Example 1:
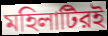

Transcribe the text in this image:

মহিলাটিরই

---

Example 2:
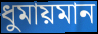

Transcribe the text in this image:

ধুমায়মান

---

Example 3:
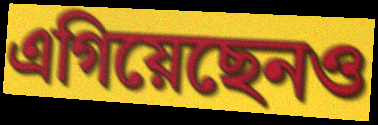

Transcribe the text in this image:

এগিয়েছেনও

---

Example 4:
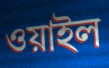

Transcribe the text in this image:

ওয়াইল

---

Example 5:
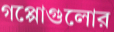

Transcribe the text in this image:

গপ্পোগুলোর